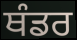
ਥੰਡਰ